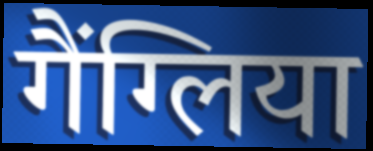
गैंग्लिया